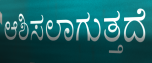
ಆಶಿಸಲಾಗುತ್ತದೆ